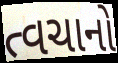
ત્વચાનો